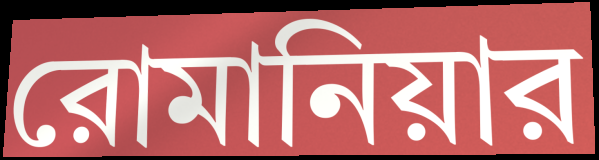
রোমানিয়ার